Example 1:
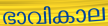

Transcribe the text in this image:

ഭാവികാല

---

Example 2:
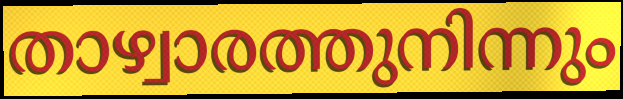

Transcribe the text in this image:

താഴ്വാരത്തുനിന്നും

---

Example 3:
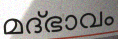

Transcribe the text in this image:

മദ്ഭാവം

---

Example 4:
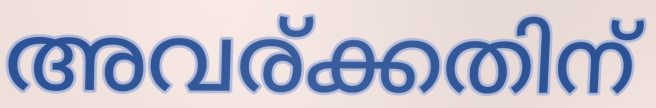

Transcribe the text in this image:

അവര്ക്കതിന്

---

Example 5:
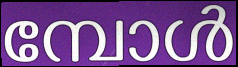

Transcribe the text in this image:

മ്പോൾ